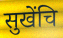
सुखेंचि